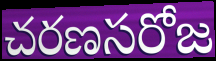
చరణసరోజ